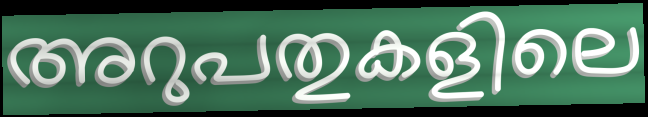
അറുപതുകളിലെ